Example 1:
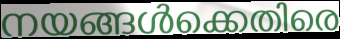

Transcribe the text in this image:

നയങ്ങൾക്കെതിരെ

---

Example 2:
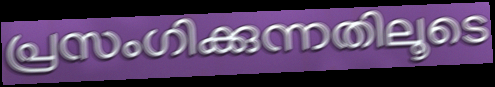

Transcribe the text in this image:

പ്രസംഗിക്കുന്നതിലൂടെ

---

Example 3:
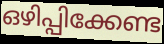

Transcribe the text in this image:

ഒഴിപ്പിക്കേണ്ട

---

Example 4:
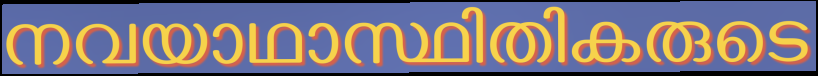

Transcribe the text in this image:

നവയാഥാസ്ഥിതികരുടെ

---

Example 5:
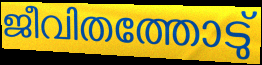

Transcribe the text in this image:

ജീവിതത്തോടു്